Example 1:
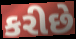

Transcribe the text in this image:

કરીછે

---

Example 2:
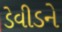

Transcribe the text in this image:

ડેવીડને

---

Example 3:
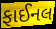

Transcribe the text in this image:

ફાઈનલ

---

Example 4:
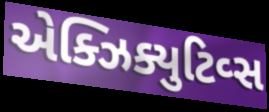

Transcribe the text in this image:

એક્ઝિક્યુટિવ્સ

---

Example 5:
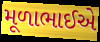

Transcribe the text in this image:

મૂળાભાઈએ